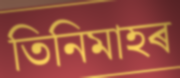
তিনিমাহৰ